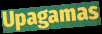
Upagamas